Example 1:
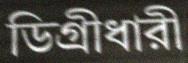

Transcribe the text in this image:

ডিগ্রীধারী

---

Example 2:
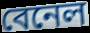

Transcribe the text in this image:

বেনেল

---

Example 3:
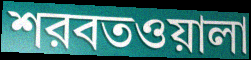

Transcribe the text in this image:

শরবতওয়ালা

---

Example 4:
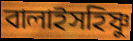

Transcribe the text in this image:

বালাইসহিষ্ণু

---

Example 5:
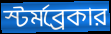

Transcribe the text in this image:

স্টর্মব্রেকার